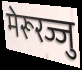
मेरूरज्जु